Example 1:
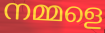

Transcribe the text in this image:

നമ്മളെ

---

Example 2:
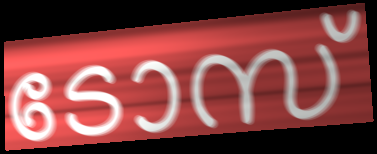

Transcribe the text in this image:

ടോസ്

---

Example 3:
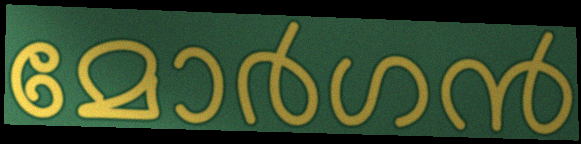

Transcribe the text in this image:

മോർഗൻ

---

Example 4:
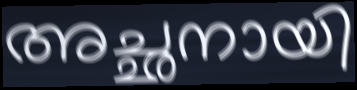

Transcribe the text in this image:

അച്ഛനായി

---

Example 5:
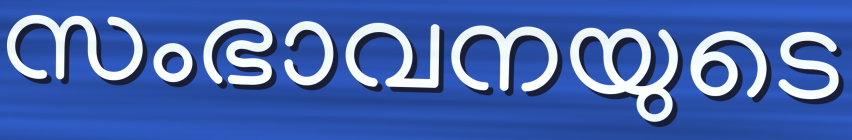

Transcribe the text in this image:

സംഭാവനയുടെ